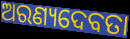
ଅରଣ୍ୟଦେବତା